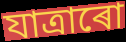
যাত্ৰাৰো